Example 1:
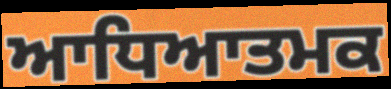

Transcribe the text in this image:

ਆਧਿਆਤਮਕ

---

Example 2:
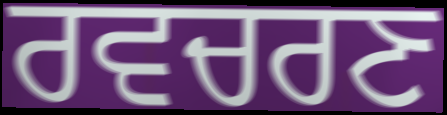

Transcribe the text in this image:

ਰਵਚਰਣ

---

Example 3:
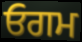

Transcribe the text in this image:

ਓਗਮ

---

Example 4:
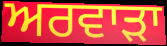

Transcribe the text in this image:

ਅਰਵਾੜਾ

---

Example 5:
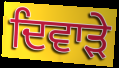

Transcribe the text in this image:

ਦਿਵਾੜੇ